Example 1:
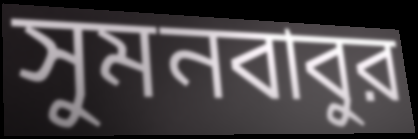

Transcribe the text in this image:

সুমনবাবুর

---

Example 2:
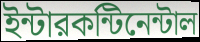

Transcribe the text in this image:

ইন্টারকন্টিনেন্টাল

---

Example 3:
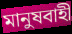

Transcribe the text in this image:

মানুষবাহী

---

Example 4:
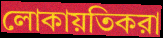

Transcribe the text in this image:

লোকায়তিকরা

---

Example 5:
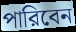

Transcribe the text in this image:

পারিবেন